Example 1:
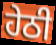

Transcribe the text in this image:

ਹੇਠੀ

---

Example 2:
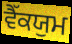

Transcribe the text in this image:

ਵੈੱਕਯੁਮ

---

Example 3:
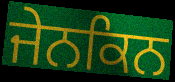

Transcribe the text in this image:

ਜੇਨਕਿਨ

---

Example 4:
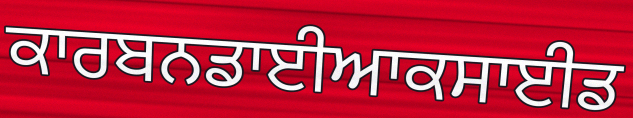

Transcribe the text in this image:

ਕਾਰਬਨਡਾਈਆਕਸਾਈਡ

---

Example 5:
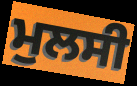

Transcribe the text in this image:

ਮੁਲਸੀ